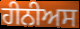
ਹੀਨੀਅਸ